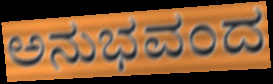
ಅನುಭವಂದ